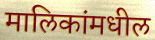
मालिकांमधील